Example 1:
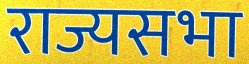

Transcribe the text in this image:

राज्यसभा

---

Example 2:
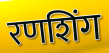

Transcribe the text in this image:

रणशिंग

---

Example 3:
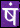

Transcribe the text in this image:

षं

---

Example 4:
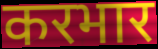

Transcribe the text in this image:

करभार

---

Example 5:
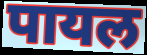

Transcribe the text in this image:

पायल